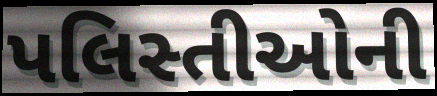
પલિસ્તીઓની